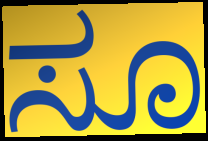
ಸೂ